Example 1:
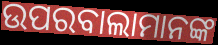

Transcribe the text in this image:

ଉପରବାଲାମାନଙ୍କ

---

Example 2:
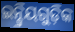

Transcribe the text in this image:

ଇନ୍ଦ୍ରିୟଗୁଡ଼ିକ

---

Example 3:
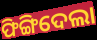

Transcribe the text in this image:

ଫିଙ୍ଗିଦେଲା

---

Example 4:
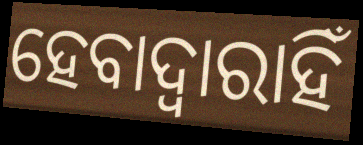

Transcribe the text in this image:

ହେବାଦ୍ଵାରାହିଁ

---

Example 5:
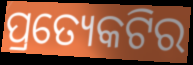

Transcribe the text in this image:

ପ୍ରତ୍ୟେକଟିର